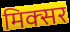
मिक्‍सर